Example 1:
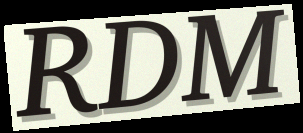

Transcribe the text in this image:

RDM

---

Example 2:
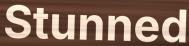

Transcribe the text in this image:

Stunned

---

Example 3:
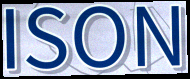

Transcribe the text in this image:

ISON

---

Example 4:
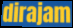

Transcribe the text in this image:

dirajam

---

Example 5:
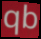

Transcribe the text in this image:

qb